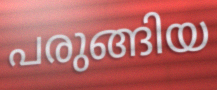
പരുങ്ങിയ